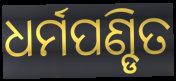
ଧର୍ମପଣ୍ଡିତ